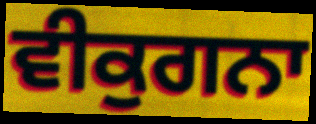
ਵੀਕੁਗਨਾ